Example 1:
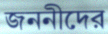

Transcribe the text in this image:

জননীদের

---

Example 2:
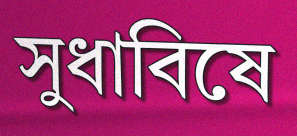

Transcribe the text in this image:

সুধাবিষে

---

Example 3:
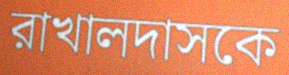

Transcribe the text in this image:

রাখালদাসকে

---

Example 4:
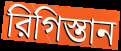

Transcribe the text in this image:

রিগিস্তান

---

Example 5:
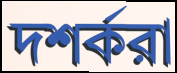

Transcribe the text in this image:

দশর্করা